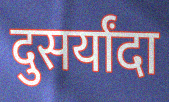
दुसर्यांदा